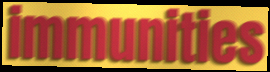
immunities